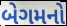
બેગમનો